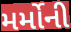
મર્મોની